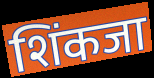
शिंकजा